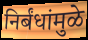
निर्बंधांमुळे